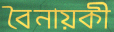
বৈনায়কী